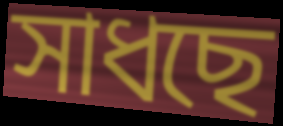
সাধছে